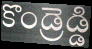
కొండ్రెడ్డి